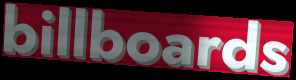
billboards